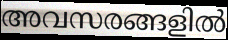
അവസരങ്ങളിൽ